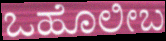
ಒಹೊಲೀಬ